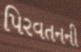
પિરવતનની